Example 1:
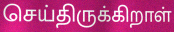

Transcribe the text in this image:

செய்திருக்கிறாள்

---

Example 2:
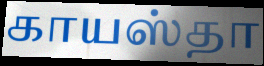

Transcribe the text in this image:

காயஸ்தா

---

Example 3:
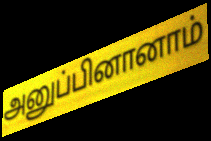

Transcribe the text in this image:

அனுப்பினானாம்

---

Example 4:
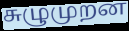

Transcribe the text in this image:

சுழுமுறன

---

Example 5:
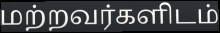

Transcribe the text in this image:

மற்றவர்களிடம்